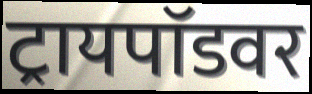
ट्रायपॉडवर